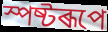
স্পষ্টৰূপে